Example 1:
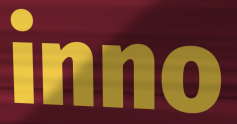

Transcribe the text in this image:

inno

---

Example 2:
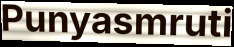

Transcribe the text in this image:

Punyasmruti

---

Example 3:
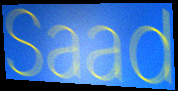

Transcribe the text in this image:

Saad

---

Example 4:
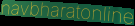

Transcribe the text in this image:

navbharatonline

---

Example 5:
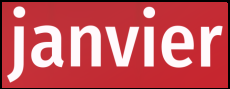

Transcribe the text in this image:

janvier